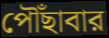
পৌঁছাবার